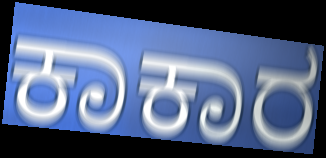
ಕಾಕಾರ